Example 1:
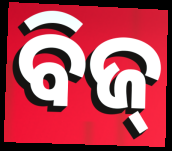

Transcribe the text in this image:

ବିଜ୍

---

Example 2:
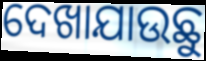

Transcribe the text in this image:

ଦେଖାଯାଉଛୁ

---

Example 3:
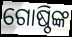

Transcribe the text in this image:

ଗୋଷ୍ଠିଙ୍କ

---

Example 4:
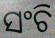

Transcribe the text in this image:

ସଂଚି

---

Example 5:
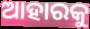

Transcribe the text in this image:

ଆହାରକୁ